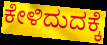
ಕೇಳಿದುದಕ್ಕೆ